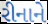
રીનાને